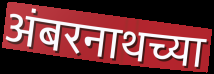
अंबरनाथच्या